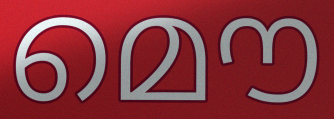
മൌ